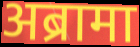
अब्रामा